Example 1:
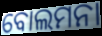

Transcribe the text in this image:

ବୋଲମନା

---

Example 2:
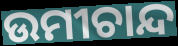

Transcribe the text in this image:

ଉମୀଚାନ୍ଦ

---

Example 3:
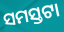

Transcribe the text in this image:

ସମସ୍ତଟା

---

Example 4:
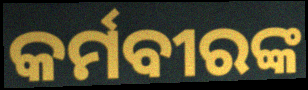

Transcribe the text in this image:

କର୍ମବୀରଙ୍କ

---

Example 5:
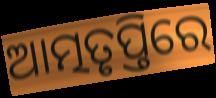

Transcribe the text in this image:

ଆତ୍ମତୃପ୍ତିରେ